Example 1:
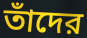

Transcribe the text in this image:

তাঁদের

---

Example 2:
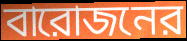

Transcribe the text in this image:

বারোজনের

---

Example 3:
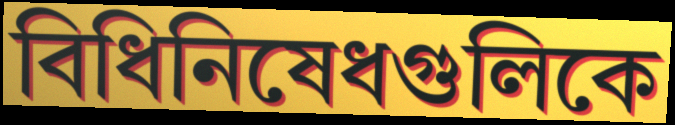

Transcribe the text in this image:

বিধিনিষেধগুলিকে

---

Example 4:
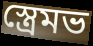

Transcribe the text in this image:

স্ত্রেমভ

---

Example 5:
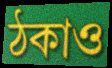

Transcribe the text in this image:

ঠকাও